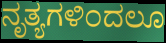
ನೃತ್ಯಗಳಿಂದಲೂ